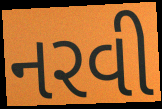
નરવી